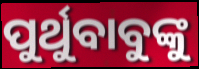
ପୁର୍ଥୁବାବୁଙ୍କୁ